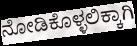
ನೋಡಿಕೊಳ್ಳಲಿಕ್ಕಾಗಿ